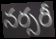
నర్సరీ